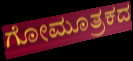
ಗೋಮೂತ್ರಕದ